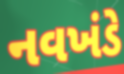
નવખંડે